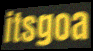
itsgoa